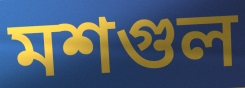
মশগুল